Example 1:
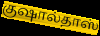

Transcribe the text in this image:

குஷால்தாஸ்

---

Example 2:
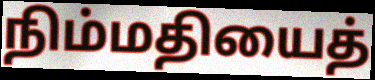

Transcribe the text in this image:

நிம்மதியைத்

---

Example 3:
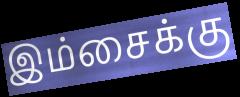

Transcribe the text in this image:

இம்சைக்கு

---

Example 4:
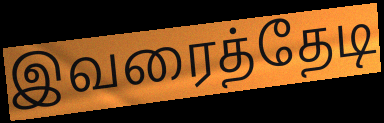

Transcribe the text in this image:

இவரைத்தேடி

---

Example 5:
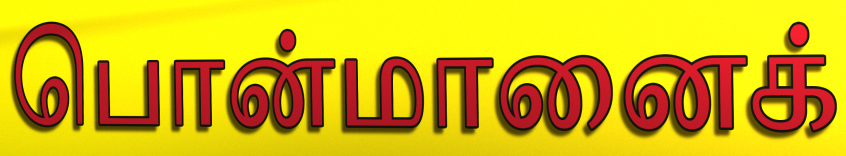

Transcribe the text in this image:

பொன்மானைக்